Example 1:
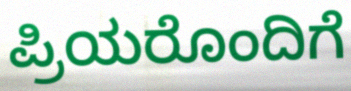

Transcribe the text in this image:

ಪ್ರಿಯರೊಂದಿಗೆ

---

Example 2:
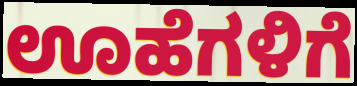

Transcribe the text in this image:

ಊಹೆಗಳಿಗೆ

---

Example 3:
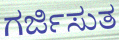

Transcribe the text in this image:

ಗರ್ಜಿಸುತ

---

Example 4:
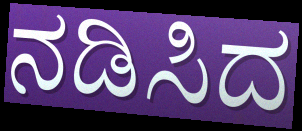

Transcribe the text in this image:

ನಡಿಸಿದ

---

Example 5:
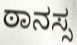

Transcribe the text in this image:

ಠಾನಸ್ಸ